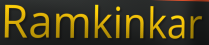
Ramkinkar